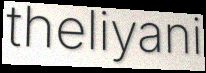
theliyani